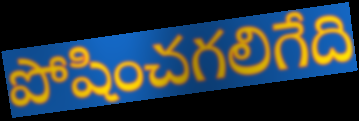
పోషించగలిగేది